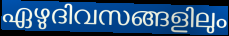
ഏഴുദിവസങ്ങളിലും